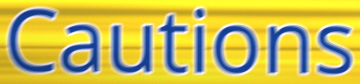
Cautions